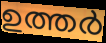
ഉത്തർ